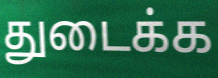
துடைக்க